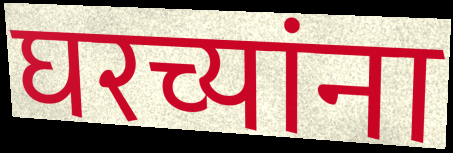
घरच्‍यांना